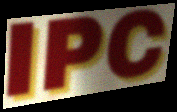
IPC